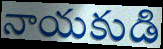
నాయకుడి